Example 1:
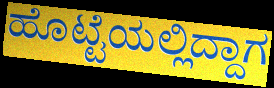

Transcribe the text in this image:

ಹೊಟ್ಟೆಯಲ್ಲಿದ್ದಾಗ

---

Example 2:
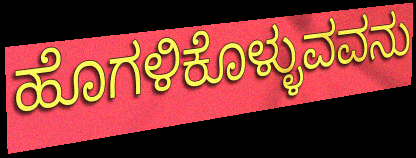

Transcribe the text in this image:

ಹೊಗಳಿಕೊಳ್ಳುವವನು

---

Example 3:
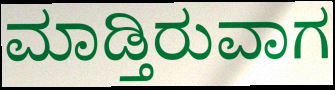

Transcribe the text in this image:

ಮಾಡ್ತಿರುವಾಗ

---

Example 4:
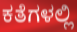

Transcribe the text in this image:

ಕತೆಗಳಲ್ಲಿ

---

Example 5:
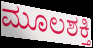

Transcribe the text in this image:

ಮೂಲಶಕ್ತಿ